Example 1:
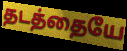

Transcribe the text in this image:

தடத்தையே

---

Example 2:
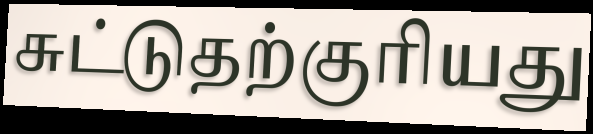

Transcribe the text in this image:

சுட்டுதற்குரியது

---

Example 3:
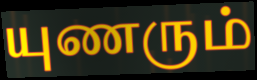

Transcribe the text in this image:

யுணரும்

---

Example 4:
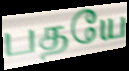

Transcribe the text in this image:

பதயே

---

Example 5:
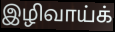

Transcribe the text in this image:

இழிவாய்க்